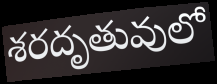
శరదృతువులో